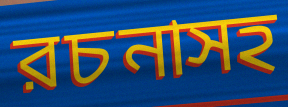
রচনাসহ